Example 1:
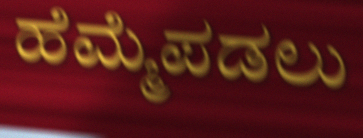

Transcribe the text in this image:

ಹೆಮ್ಮೆಪಡಲು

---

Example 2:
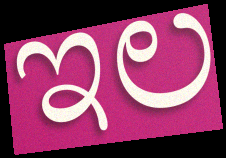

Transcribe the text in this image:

ಇಲ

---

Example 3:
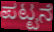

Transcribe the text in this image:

ಪಟ್ಟನೆ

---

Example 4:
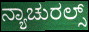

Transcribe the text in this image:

ನ್ಯಾಚುರಲ್ಸ್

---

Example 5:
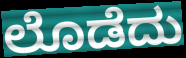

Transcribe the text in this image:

ಲೊಡೆದು